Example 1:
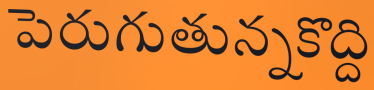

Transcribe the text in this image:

పెరుగుతున్నకొద్ది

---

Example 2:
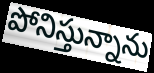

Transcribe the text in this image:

పోనిస్తున్నాను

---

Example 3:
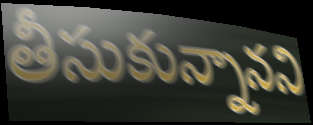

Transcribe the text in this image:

తీసుకున్నానని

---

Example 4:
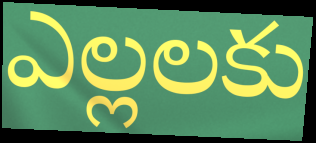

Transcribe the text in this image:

ఎల్లలకు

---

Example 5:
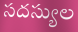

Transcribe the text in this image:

సదస్యుల